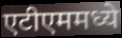
एटीएममध्ये